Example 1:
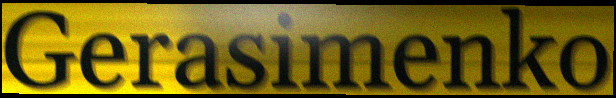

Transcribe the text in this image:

Gerasimenko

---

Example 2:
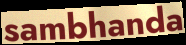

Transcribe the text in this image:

sambhanda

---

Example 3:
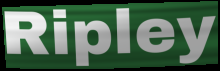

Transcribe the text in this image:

Ripley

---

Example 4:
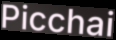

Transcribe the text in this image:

Picchai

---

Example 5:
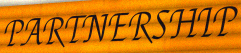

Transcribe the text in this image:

PARTNERSHIP